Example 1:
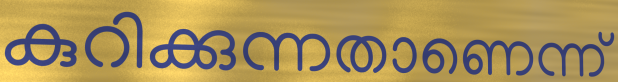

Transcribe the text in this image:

കുറിക്കുന്നതാണെന്ന്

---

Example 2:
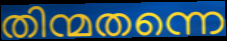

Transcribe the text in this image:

തിന്മതന്നെ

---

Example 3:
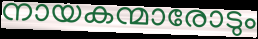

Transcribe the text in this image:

നായകന്മാരോടും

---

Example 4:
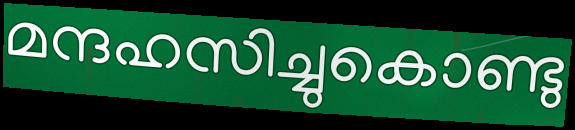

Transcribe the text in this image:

മന്ദഹസിച്ചുകൊണ്ടു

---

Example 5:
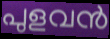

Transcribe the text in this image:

പുളവൻ